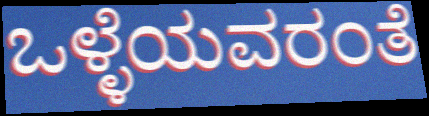
ಒಳ್ಳೆಯವರಂತೆ